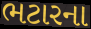
ભટારના